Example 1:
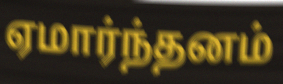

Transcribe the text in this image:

ஏமார்ந்தனம்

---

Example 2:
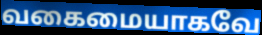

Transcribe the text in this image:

வகைமையாகவே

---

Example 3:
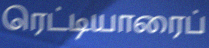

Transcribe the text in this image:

ரெட்டியாரைப்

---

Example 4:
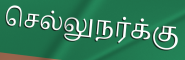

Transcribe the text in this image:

செல்லுநர்க்கு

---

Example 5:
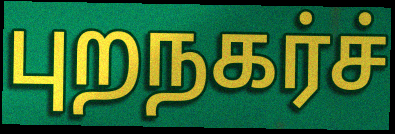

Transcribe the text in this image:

புறநகர்ச்